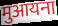
मुआयना